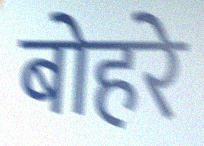
बोहरे